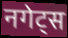
नगेट्स